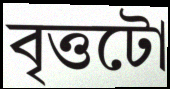
বৃত্তটো